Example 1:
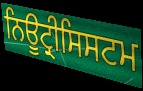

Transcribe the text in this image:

ਨਿਊਟ੍ਰੀਸਿਸਟਮ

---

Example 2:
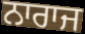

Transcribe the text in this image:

ਨਾਰਾਜ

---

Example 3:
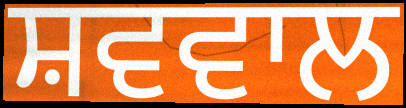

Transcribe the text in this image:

ਸ਼ਵਵਾਲ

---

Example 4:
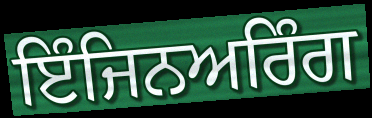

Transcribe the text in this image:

ਇੰਜਿਨਅਰਿੰਗ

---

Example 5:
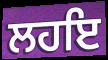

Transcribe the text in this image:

ਲਹਇ